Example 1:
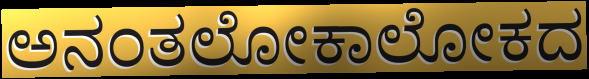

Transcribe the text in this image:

ಅನಂತಲೋಕಾಲೋಕದ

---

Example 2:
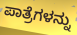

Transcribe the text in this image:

ಪಾತ್ರೆಗಳನ್ನು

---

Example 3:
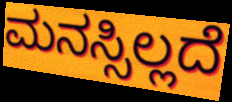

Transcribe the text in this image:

ಮನಸ್ಸಿಲ್ಲದೆ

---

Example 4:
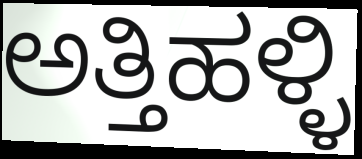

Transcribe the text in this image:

ಅತ್ತಿಹಳ್ಳಿ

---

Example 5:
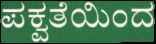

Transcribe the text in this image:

ಪಕ್ವತೆಯಿಂದ